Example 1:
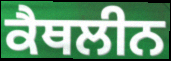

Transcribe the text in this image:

ਕੈਥਲੀਨ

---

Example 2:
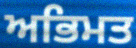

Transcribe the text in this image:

ਅਭਿਮਤ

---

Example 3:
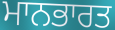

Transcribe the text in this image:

ਮਾਨਭਾਰਤ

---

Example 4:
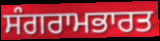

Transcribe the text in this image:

ਸੰਗਰਾਮਭਾਰਤ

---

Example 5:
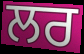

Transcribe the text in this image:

ਲਰ